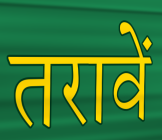
तरावें